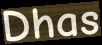
Dhas